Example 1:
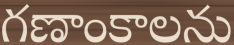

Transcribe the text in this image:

గణాంకాలను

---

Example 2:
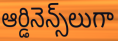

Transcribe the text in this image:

ఆర్డినెన్స్‌లుగా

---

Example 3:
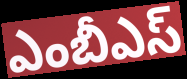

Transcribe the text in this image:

ఎంబీఎస్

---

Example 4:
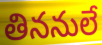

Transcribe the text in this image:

తిననులే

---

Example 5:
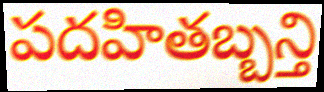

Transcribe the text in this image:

పదహితబ్బన్తి